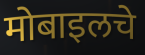
मोबाइलचे